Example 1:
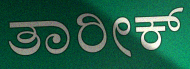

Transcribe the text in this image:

ತಾರೀಕ್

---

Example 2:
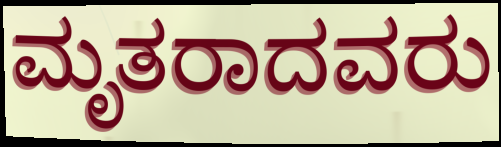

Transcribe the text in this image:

ಮೃತರಾದವರು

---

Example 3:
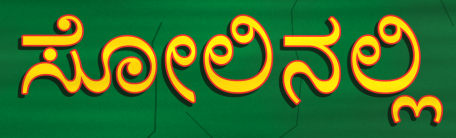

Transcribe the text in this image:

ಸೋಲಿನಲ್ಲಿ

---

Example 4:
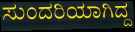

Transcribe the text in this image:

ಸುಂದರಿಯಾಗಿದ್ದ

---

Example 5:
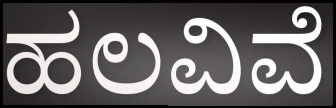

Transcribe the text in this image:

ಹಲವಿವೆ